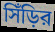
সিঁড়ির